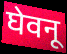
घेवनू